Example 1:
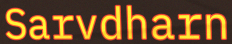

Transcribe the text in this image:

Sarvdharn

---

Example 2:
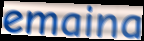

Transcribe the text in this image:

emaina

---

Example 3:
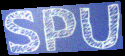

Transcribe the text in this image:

SPU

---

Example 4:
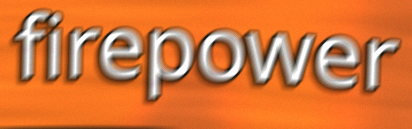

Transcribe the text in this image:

firepower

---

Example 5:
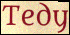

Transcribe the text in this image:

Tedy